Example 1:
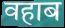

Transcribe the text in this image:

वहाब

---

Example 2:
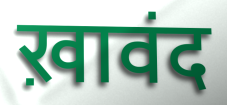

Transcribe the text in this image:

ख़ावंद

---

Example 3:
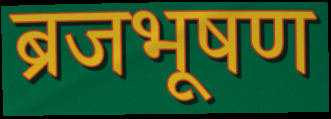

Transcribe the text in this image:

ब्रजभूषण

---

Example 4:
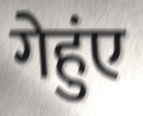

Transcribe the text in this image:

गेहुंए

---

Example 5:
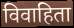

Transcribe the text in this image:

विवाहिता